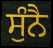
ਸੁੰਨੈ